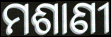
ମଶାଣୀ